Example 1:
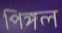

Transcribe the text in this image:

পিঙ্গল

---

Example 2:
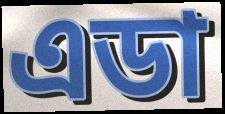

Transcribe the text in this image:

এডা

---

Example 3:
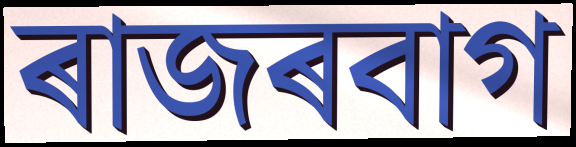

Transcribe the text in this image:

ৰাজৰবাগ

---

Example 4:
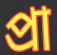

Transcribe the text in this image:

প্ৰা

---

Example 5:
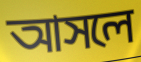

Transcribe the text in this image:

আসলে